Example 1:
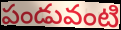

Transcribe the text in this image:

పండువంటి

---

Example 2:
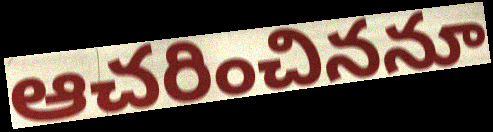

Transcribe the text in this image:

ఆచరించిననూ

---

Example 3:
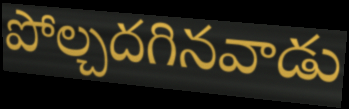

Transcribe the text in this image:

పోల్చదగినవాడు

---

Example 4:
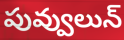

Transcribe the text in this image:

పువ్వులున్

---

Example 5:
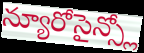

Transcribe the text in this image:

న్యూరోసైన్స్లో